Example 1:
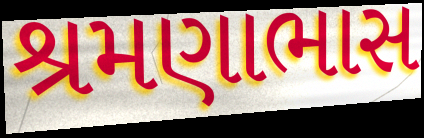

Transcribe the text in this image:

શ્રમણાભાસ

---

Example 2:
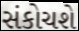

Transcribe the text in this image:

સંકોચશે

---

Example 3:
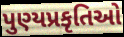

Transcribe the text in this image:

પુણ્યપ્રકૃતિઓ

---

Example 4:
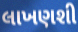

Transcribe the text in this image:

લાખણશી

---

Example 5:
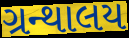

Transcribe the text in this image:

ગ્રન્થાલય